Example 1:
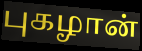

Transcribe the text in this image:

புகழான்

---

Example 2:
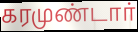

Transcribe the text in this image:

கரமுண்டார்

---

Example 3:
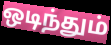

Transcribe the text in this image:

ஒடிந்தும்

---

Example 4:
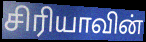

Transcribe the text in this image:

சிரியாவின்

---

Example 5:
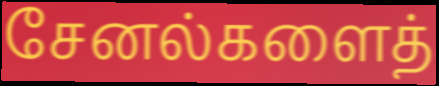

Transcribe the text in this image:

சேனல்களைத்